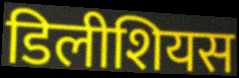
डिलीशियस